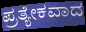
ಪ್ರತ್ಯೇಕವಾದ